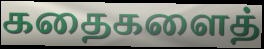
கதைகளைத்